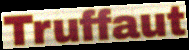
Truffaut